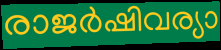
രാജർഷിവര്യാ